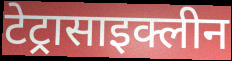
टेट्रासाइक्लीन